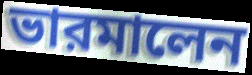
ভারমালেন